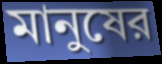
মানুষের